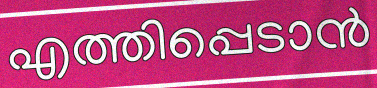
എത്തിപ്പെടാൻ